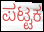
ಪಟ್ಟಕ